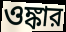
ওঙ্কার